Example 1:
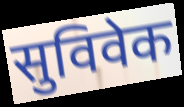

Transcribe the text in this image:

सुविवेक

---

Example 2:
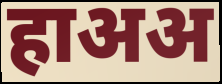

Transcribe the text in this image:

हाअअ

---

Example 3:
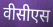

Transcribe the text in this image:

वीसीएस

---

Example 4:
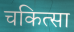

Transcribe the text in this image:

चकित्सा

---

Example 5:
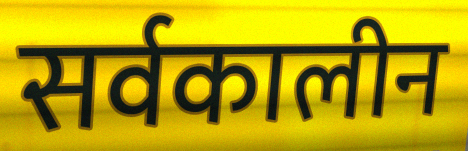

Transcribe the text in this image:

सर्वकालीन